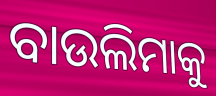
ବାଉଲିମାକୁ